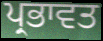
ਪ੍ਰਭਾਵਤ